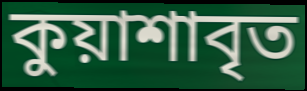
কুয়াশাবৃত